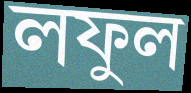
লফুল